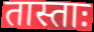
तास्ताः